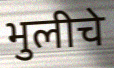
भुलीचे